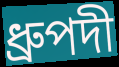
ধ্ৰুপদী